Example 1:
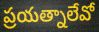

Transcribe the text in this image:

ప్రయత్నాలేవో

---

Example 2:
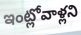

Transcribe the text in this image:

ఇంట్లోవాళ్లని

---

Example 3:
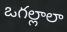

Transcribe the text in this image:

ఒగల్లాలా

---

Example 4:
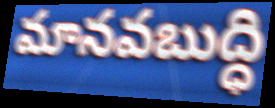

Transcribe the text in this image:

మానవబుద్ధి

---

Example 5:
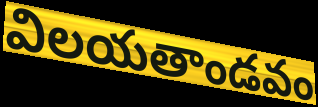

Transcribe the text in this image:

విలయతాండవం